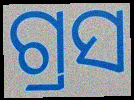
ଗ୍ରସ